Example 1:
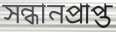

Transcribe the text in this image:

সন্ধানপ্রাপ্ত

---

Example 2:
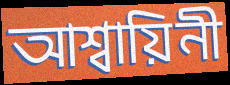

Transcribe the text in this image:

আশ্বায়িনী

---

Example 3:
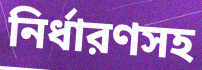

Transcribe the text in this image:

নির্ধারণসহ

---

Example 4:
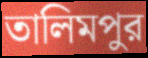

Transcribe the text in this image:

তালিমপুর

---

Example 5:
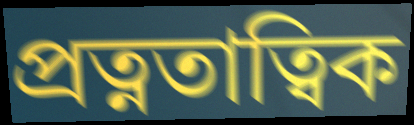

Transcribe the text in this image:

প্রত্নতাত্বিক